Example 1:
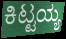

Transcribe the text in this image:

ಕಿಟ್ಟಯ್ಯ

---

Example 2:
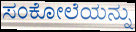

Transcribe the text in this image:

ಸಂಕೋಲೆಯನ್ನು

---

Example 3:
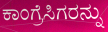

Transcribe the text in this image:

ಕಾಂಗ್ರೆಸಿಗರನ್ನು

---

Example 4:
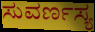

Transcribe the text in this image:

ಸುವರ್ಣಸ್ಯ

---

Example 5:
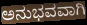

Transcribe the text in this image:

ಅನುಭವವಾಗಿ